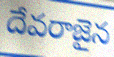
దేవరాజైన